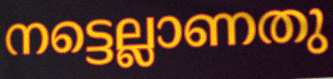
നട്ടെല്ലാണതു